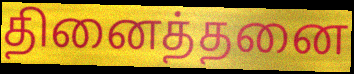
தினைத்தனை